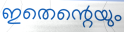
ഇതെന്റെയും